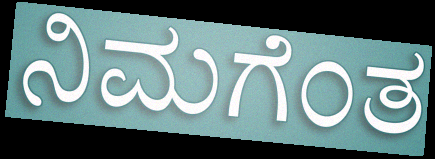
ನಿಮಗೆಂತ